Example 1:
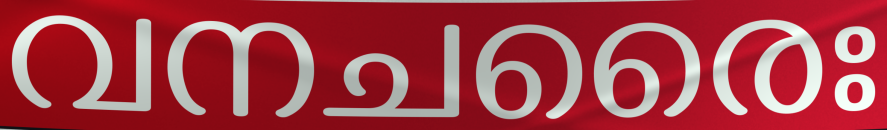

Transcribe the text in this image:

വനചരൈഃ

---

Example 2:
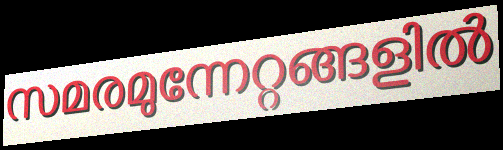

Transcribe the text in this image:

സമരമുന്നേറ്റങ്ങളിൽ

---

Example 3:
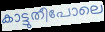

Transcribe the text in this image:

കാട്ടുതീപോലെ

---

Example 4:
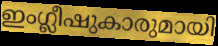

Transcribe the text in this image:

ഇംഗ്ലീഷുകാരുമായി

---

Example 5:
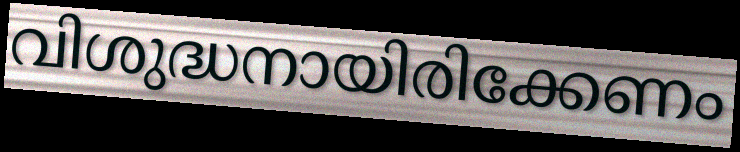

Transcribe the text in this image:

വിശുദ്ധനായിരിക്കേണം